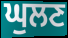
ਘੁਲਣ